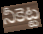
నీకెట్ట